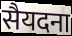
सैयदना